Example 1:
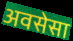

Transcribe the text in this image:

अवसेसा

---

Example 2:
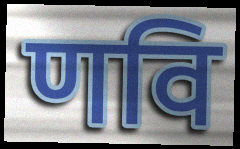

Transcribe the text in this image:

णवि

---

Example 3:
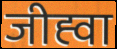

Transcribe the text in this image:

जीह्वा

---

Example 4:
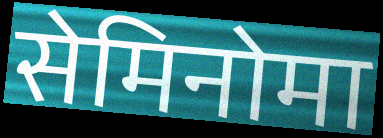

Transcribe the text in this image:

सेमिनोमा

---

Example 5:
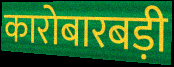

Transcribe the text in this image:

कारोबारबड़ी